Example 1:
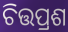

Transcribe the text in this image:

ଚିତ୍ତପ୍ରଶ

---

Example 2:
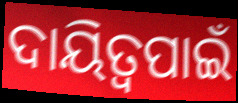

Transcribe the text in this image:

ଦାୟିତ୍ୱପାଇଁ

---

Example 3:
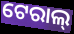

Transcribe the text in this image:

ଟେରାଲ୍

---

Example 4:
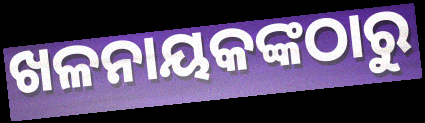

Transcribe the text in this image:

ଖଳନାୟକଙ୍କଠାରୁ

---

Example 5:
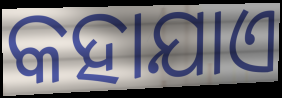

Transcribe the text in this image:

କହାଯାଏ